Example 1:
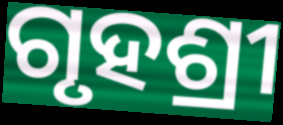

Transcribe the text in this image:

ଗୃହଶ୍ରୀ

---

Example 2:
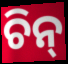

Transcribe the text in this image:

ଚିନ୍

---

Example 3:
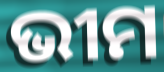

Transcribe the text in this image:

ଭୀମ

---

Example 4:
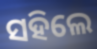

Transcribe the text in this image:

ସହିଲେ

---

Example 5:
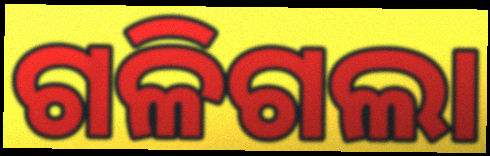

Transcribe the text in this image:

ଗଳିଗଲା